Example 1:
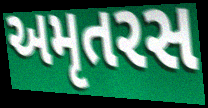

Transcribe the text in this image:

અમૃતરસ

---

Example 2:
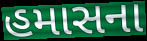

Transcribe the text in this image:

હમાસના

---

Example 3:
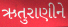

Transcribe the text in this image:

ઋતુરાણીને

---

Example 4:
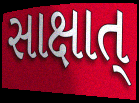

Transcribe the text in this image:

સાક્ષાત્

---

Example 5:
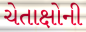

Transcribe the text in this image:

ચેતાક્ષોની